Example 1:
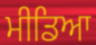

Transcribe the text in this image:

ਮੀਡਿਆ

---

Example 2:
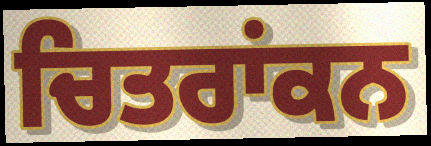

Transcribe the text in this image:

ਚਿਤਰਾਂਕਨ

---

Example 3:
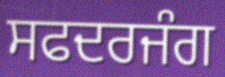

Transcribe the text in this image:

ਸਫਦਰਜੰਗ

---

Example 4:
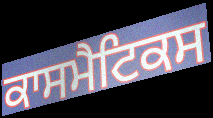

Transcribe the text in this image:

ਕਾਸਮੈਟਿਕਸ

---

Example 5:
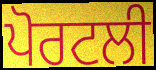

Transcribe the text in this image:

ਪੋਰਟਲੀ